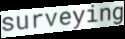
surveying